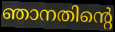
ഞാനതിന്റെ